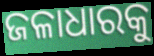
ଜଳାଧାରକୁ